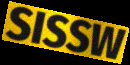
SISSW